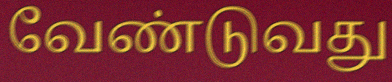
வேண்டுவது